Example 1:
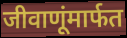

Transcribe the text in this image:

जीवाणूंमार्फत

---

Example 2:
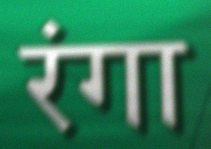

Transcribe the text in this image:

रंगा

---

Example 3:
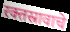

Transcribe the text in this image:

रक्तस्रावाचे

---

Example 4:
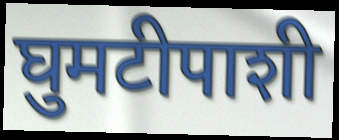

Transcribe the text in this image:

घुमटीपाशी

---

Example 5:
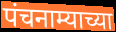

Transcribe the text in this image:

पंचनाम्याच्या